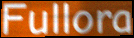
Fullora